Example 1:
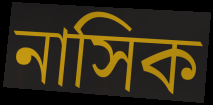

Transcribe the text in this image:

নাসিক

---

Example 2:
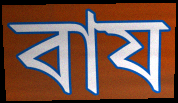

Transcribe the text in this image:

বায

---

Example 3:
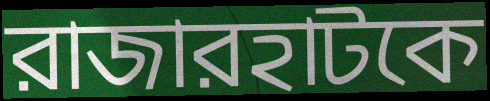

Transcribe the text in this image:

রাজারহাটকে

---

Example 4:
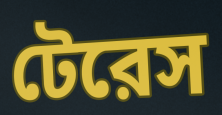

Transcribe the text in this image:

টেরেস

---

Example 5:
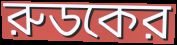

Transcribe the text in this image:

রুডকের